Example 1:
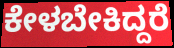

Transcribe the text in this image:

ಕೇಳಬೇಕಿದ್ದರೆ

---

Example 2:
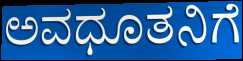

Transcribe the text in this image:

ಅವಧೂತನಿಗೆ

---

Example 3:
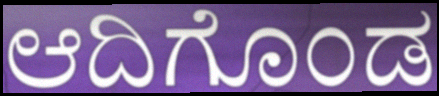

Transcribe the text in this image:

ಆದಿಗೊಂಡ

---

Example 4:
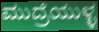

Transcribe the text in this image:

ಮುದ್ರೆಯುಳ್ಳ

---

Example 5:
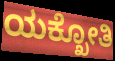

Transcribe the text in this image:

ಯಕ್ಖೋತಿ